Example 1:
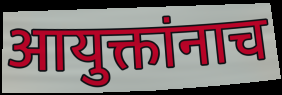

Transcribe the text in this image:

आयुक्तांनाच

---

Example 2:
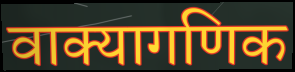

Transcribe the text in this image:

वाक्यागणिक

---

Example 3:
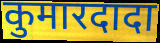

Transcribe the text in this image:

कुमारदादा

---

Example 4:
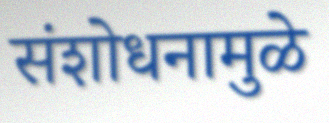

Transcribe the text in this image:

संशोधनामुळे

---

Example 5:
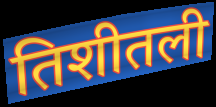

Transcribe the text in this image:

तिशीतली